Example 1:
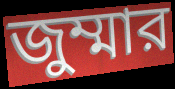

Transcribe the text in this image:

জুম্মার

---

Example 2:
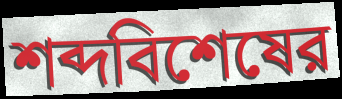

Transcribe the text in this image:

শব্দবিশেষের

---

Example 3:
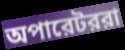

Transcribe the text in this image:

অপারেটররা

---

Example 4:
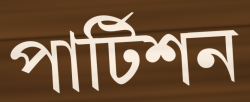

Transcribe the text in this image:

পার্টিশন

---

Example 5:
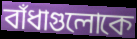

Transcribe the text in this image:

বাঁধাগুলোকে